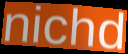
nichd